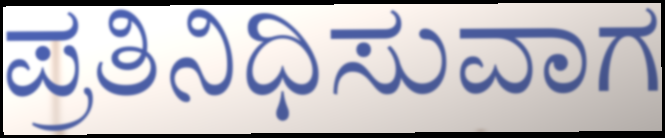
ಪ್ರತಿನಿಧಿಸುವಾಗ